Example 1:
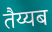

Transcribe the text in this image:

तैय्यब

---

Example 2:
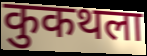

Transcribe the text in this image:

कुकथला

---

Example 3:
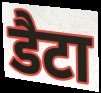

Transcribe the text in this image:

डैटा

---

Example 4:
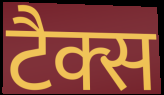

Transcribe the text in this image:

टैक्‍स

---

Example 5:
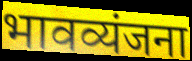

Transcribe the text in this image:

भावव्यंजना